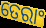
ତେରାଂ